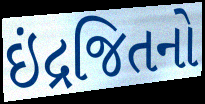
ઇંદ્રજિતનો